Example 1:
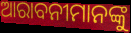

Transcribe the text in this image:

ଆରାବନୀମାନଙ୍କୁ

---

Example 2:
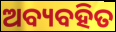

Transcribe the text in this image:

ଅବ୍ୟବହିତ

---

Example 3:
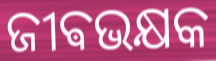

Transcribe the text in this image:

ଜୀଵଭକ୍ଷକ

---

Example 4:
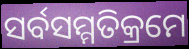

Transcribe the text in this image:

ସର୍ବସମ୍ମତିକ୍ରମେ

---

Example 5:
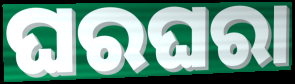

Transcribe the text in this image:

ଘରଘରା